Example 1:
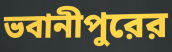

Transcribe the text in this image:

ভবানীপুরের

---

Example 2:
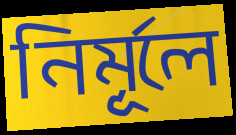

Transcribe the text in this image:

নির্মূলে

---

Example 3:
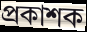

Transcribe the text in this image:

প্রকাশক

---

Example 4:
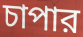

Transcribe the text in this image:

চাপার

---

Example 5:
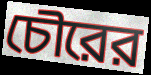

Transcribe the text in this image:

চৌরের